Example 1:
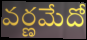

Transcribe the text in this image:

వర్ణమేదో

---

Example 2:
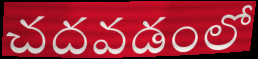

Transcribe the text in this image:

చదవడంలో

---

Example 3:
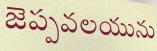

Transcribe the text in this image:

జెప్పవలయును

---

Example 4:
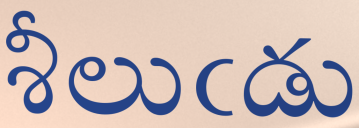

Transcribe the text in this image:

శీలుఁడు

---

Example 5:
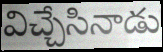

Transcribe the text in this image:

విచ్చేసినాడు